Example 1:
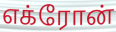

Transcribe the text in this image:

எக்ரோன்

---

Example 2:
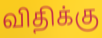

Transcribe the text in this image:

விதிக்கு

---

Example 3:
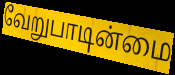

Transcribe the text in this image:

வேறுபாடின்மை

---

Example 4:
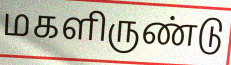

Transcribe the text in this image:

மகளிருண்டு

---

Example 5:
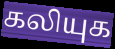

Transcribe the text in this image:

கலியுக